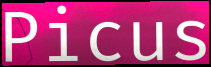
Picus